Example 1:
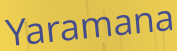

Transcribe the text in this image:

Yaramana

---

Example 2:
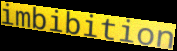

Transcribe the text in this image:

imbibition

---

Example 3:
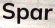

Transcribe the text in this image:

Spar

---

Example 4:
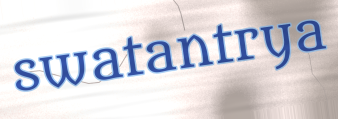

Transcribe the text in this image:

swatantrya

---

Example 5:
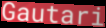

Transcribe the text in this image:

Gautari